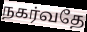
நகர்வதே